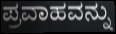
ಪ್ರವಾಹವನ್ನು